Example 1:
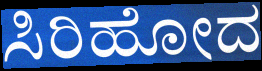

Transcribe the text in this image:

ಸಿರಿಹೋದ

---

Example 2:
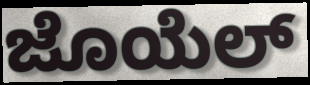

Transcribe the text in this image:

ಜೊಯೆಲ್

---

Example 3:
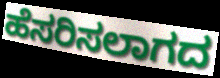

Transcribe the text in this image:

ಹೆಸರಿಸಲಾಗದ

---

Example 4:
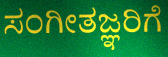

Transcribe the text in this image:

ಸಂಗೀತಜ್ಞರಿಗೆ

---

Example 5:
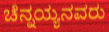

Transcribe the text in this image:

ಚೆನ್ನಯ್ಯನವರು